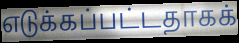
எடுக்கப்பட்டதாகக்